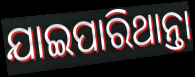
ଯାଇପାରିଥାନ୍ତା